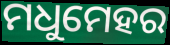
ମଧୁମେହର